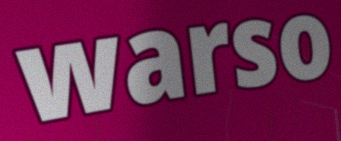
warso